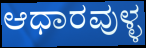
ಆಧಾರವುಳ್ಳ